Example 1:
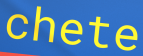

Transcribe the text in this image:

chete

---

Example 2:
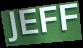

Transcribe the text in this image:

JEFF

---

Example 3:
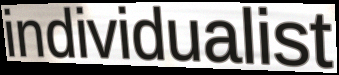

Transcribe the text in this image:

individualist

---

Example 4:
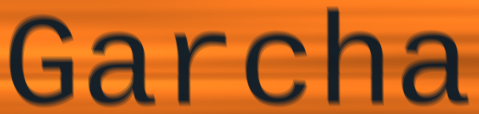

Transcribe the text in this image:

Garcha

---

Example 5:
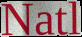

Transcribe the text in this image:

Natl